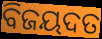
ବିଜୟଦତ